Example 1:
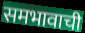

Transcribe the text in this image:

समभावाची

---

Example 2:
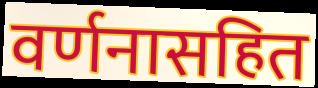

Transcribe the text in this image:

वर्णनासहित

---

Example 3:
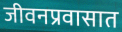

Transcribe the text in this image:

जीवनप्रवासात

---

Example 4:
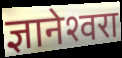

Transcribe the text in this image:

ज्ञानेश्वरा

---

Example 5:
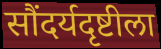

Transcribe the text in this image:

सौंदर्यदृष्टीला